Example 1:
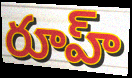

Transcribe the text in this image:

రూహ్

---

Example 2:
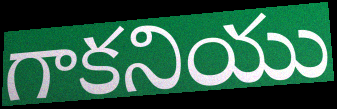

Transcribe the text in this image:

గాకనియు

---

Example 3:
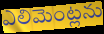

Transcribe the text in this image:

ఎలిమెంట్లను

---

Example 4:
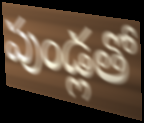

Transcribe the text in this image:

పుండ్లతో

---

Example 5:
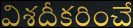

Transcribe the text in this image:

విశదీకరించే